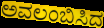
ಅವಲಂಬಿಸಿದ